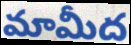
మామీద